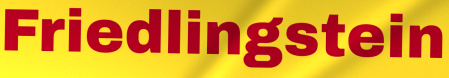
Friedlingstein